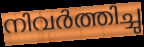
നിവർത്തിച്ചു